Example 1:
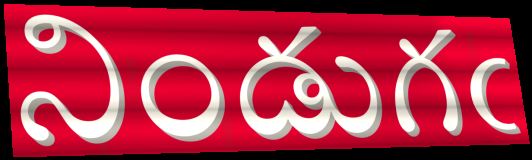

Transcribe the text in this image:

నిండుగఁ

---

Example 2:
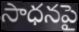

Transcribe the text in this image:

సాధనపై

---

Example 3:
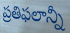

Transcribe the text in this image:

ప్రతిఫలాన్నీ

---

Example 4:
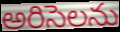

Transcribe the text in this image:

అరిసెలను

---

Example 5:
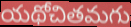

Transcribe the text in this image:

యథోచితమగు